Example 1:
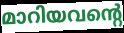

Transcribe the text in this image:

മാറിയവന്റെ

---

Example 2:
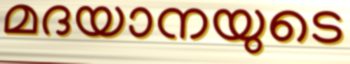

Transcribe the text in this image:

മദയാനയുടെ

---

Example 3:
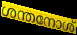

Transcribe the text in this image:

ശന്തനോശ്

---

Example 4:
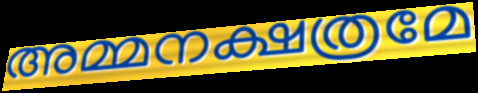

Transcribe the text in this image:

അമ്മനക്ഷത്രമേ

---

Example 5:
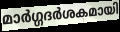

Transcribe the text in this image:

മാർഗ്ഗദർശകമായി